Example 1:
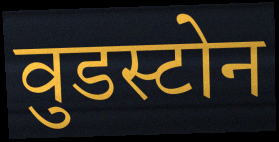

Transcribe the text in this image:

वुडस्टोन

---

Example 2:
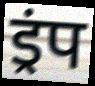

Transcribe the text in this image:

ड्रंप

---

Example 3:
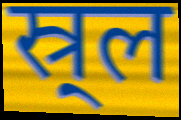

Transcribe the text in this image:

स्र्ल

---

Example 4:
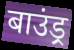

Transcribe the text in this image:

बाउंड्र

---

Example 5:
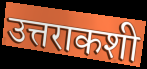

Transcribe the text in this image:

उत्तराकशी